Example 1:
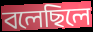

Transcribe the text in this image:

বলেছিলে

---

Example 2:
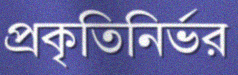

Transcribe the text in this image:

প্রকৃতিনির্ভর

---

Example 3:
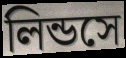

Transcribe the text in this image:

লিন্ডসে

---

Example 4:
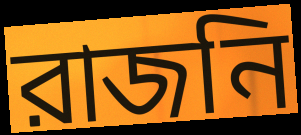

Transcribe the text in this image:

রাজনি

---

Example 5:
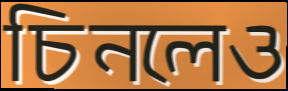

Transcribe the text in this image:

চিনলেও